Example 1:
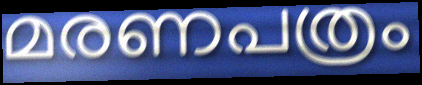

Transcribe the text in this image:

മരണപത്രം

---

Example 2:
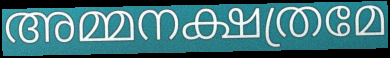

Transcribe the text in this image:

അമ്മനക്ഷത്രമേ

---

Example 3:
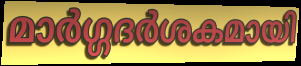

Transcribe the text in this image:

മാർഗ്ഗദർശകമായി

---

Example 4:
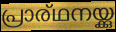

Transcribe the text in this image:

പ്രാര്ഥനയ്ക്കു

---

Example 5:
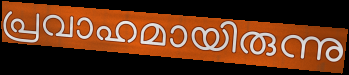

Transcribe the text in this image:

പ്രവാഹമായിരുന്നു